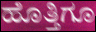
ಹೊತ್ತಿಗೂ